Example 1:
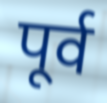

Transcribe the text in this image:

पूर्व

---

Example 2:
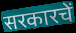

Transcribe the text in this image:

सरकारचें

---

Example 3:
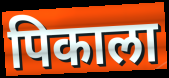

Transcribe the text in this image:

पिकाला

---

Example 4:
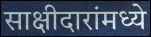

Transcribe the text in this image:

साक्षीदारांमध्ये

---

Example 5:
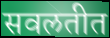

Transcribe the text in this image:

सवलतीत